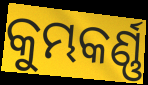
କୁମ୍ଭକର୍ଣ୍ଣ